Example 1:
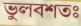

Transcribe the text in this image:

ভুলবশতঃ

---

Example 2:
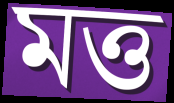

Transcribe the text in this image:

মত্ত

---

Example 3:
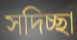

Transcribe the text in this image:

সদিচ্ছা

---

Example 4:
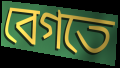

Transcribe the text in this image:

বেগতে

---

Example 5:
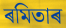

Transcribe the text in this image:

ৰমিতাৰ